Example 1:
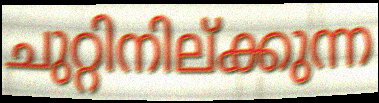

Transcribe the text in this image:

ചുറ്റിനില്ക്കുന്ന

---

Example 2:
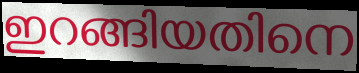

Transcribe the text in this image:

ഇറങ്ങിയതിനെ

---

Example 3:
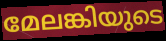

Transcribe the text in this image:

മേലങ്കിയുടെ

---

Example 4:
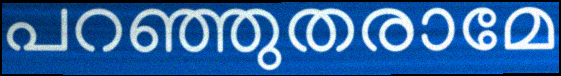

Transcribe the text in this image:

പറഞ്ഞുതരാമേ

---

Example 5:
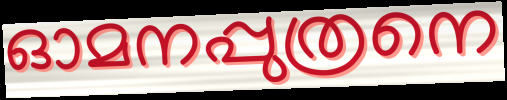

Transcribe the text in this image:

ഓമനപ്പുത്രനെ